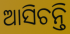
ଆସିଚନ୍ତି